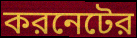
করনেটের